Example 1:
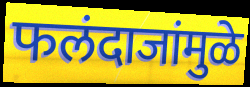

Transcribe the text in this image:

फलंदाजांमुळे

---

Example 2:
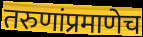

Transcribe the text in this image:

तरुणांप्रमाणेच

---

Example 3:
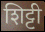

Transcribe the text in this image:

शिट्टी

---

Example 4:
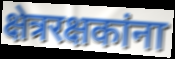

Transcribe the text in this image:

क्षेत्ररक्षकांना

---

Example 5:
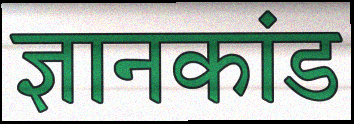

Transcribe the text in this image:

ज्ञानकांड